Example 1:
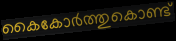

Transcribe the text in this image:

കൈകോർത്തുകൊണ്ട്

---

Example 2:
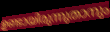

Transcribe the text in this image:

ഉണ്ടായിരുന്നുതാനും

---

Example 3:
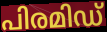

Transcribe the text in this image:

പിരമിഡ്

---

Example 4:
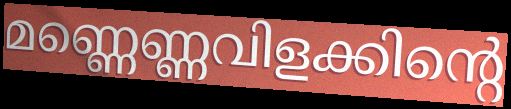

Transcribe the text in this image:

മണ്ണെണ്ണവിളക്കിന്റെ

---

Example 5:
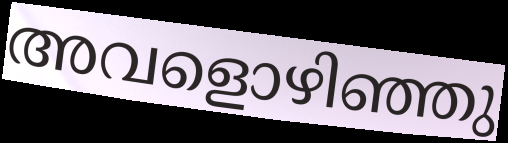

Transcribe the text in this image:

അവളൊഴിഞ്ഞു